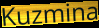
Kuzmina